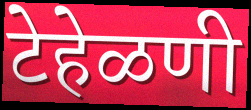
टेहेळणी